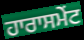
ਹਾਰਾਸਮੇਂਟ